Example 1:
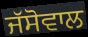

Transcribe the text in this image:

ਜੱਸੋਵਾਲ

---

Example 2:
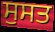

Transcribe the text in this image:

ਸੁਸਤ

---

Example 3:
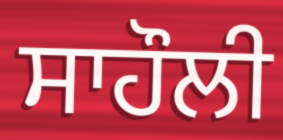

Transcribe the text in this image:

ਸਾਹੌਲੀ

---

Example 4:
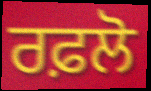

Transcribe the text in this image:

ਰਫ਼ਲੋ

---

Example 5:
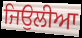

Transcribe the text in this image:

ਜਿਉਲੀਆ